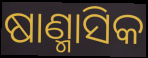
ଷାଣ୍ମାସିକ